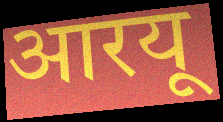
आरयू